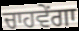
ਚਾਹਵੇਂਗਾ